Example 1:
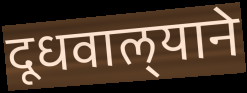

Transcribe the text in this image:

दूधवाल्याने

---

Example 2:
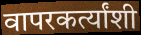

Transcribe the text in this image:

वापरकर्त्यांशी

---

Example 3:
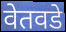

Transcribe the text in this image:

वेतवडे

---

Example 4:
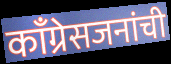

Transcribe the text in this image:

काँग्रेसजनांची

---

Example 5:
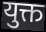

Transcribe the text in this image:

युक्त